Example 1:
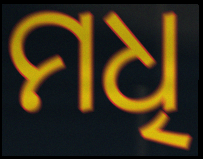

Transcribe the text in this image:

ମଧି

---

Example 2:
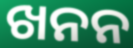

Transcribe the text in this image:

ଖନନ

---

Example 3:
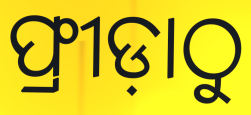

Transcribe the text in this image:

ଫ୍ରୀଡ଼ାଠୁ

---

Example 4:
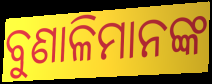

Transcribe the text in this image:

ବୁଣାଳିମାନଙ୍କ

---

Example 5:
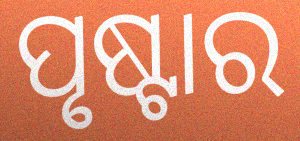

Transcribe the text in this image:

ପୃଷ୍ଟାର